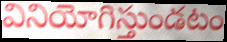
వినియోగిస్తుండటం